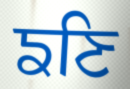
ਙਣਿ